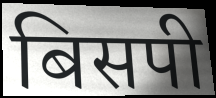
बिसपी